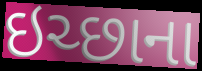
ઇચ્છાના